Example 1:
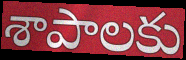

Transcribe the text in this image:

శాపాలకు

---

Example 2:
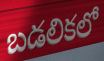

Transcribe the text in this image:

బడలికలో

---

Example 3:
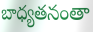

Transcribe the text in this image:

బాధ్యతనంతా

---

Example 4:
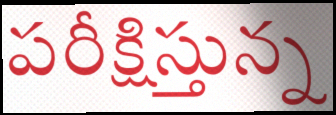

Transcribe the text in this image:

పరీక్షిస్తున్న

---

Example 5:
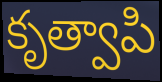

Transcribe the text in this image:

కృత్వాపి